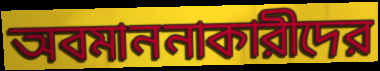
অবমাননাকারীদের